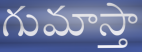
గుమాస్తా